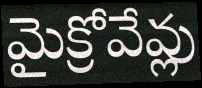
మైక్రోవేవ్లు